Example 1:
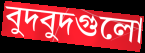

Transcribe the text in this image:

বুদবুদগুলো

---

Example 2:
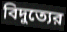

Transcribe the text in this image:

বিদুত্যের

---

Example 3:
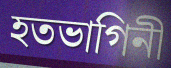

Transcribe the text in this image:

হতভাগিনী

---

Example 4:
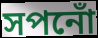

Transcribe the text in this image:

সপনোঁ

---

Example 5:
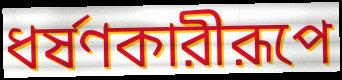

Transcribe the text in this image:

ধর্ষণকারীরূপে